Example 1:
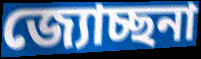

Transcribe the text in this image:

জ্যোচ্ছনা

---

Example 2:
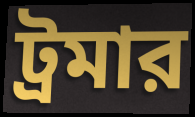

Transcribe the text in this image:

ট্রমার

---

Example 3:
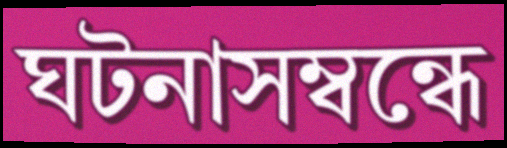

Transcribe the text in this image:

ঘটনাসম্বন্ধে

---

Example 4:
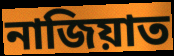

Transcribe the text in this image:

নাজিয়াত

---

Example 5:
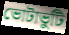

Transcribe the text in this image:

ভোটাভুটি